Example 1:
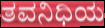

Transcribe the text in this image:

ತವನಿಧಿಯ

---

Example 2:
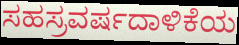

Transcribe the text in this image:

ಸಹಸ್ರವರ್ಷದಾಳಿಕೆಯ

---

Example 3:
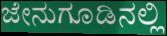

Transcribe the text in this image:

ಜೇನುಗೂಡಿನಲ್ಲಿ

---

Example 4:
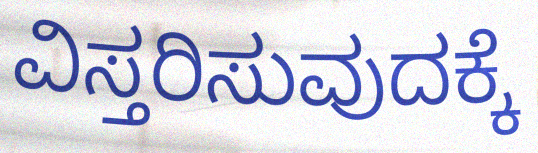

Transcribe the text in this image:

ವಿಸ್ತರಿಸುವುದಕ್ಕೆ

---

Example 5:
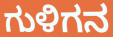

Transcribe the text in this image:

ಗುಳಿಗನ